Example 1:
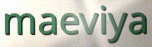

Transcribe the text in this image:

maeviya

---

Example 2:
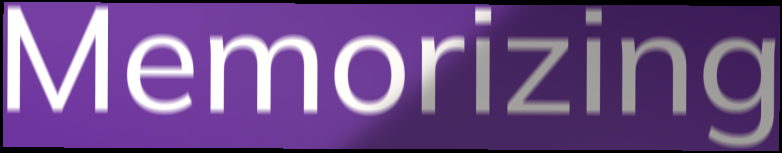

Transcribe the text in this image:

Memorizing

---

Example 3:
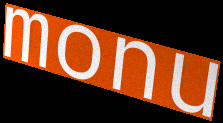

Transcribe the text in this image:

monu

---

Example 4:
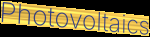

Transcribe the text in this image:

Photovoltaics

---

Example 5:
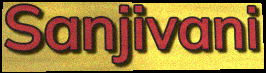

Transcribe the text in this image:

Sanjivani